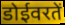
डोईवरतें